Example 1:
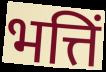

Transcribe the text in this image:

भत्तिं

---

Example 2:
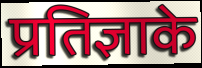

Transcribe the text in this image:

प्रतिज्ञाके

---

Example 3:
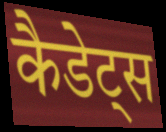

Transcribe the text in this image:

कैडेट्स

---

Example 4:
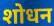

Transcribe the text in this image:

शोधन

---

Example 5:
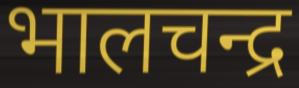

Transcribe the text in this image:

भालचन्द्र